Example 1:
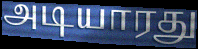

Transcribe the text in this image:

அடியாரது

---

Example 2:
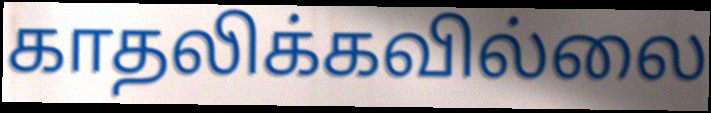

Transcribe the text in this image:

காதலிக்கவில்லை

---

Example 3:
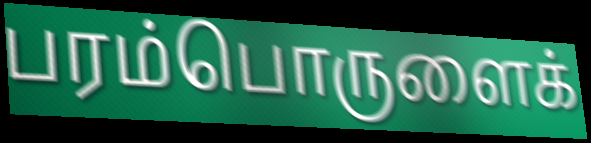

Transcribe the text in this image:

பரம்பொருளைக்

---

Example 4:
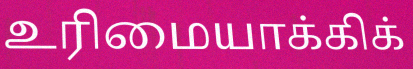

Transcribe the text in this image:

உரிமையாக்கிக்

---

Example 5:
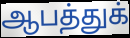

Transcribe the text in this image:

ஆபத்துக்